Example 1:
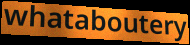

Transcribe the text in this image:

whataboutery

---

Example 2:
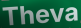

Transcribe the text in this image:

Theva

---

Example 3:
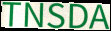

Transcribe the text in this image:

TNSDA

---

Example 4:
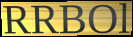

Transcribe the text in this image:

RRBOl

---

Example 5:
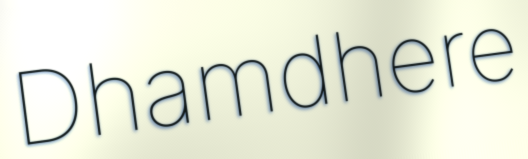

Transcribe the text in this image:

Dhamdhere